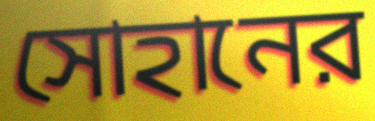
সোহানের